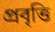
প্ৰবৃত্তি